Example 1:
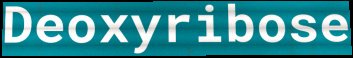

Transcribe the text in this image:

Deoxyribose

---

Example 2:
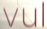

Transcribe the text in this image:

vul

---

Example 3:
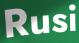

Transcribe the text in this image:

Rusi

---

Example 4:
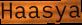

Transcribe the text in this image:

Haasya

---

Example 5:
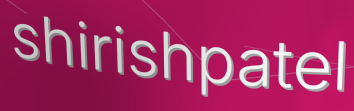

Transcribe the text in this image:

shirishpatel